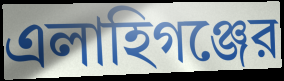
এলাহিগঞ্জের